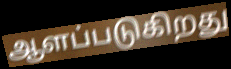
ஆளப்படுகிறது